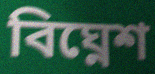
বিঘ্নেশ